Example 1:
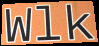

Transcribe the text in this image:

Wlk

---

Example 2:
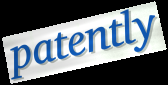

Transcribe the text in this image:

patently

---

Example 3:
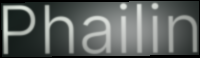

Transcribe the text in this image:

Phailin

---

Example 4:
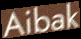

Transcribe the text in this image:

Aibak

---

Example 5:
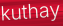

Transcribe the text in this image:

kuthay